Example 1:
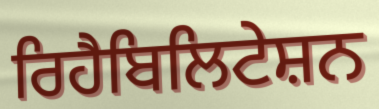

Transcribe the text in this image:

ਰਿਹੈਬਿਲਿਟੇਸ਼ਨ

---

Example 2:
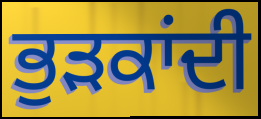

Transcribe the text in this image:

ਭੁੜਕਾਂਦੀ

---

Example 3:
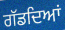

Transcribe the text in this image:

ਗੱਡਦਿਆਂ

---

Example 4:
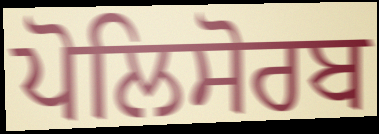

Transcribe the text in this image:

ਪੋਲਿਸੋਰਬ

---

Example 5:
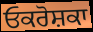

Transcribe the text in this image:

ਓਕਰੋਸ਼ਕਾ